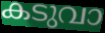
കടുവാ